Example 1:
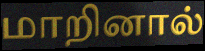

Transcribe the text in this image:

மாறினால்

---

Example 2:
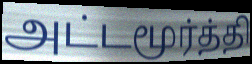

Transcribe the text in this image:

அட்டமூர்த்தி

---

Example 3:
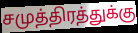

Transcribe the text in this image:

சமுத்திரத்துக்கு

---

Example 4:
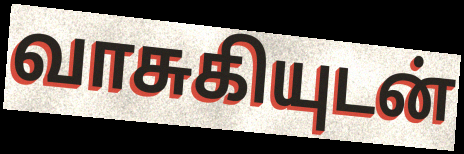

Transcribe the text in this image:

வாசுகியுடன்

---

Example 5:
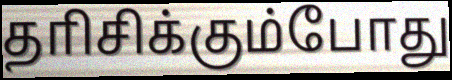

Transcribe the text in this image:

தரிசிக்கும்போது